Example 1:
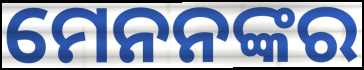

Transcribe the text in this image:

ମେନନଙ୍କର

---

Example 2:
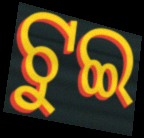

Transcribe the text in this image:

ଟୁଇ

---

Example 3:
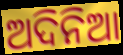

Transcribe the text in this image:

ଅଦିନିଆ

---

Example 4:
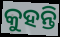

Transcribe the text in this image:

କୁହନ୍ତି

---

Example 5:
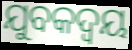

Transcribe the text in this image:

ଯୁବକଦ୍ୱୟ